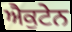
ਐਕੁਟੇਨ